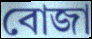
বোজা